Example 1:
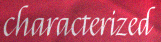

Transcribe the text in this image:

characterized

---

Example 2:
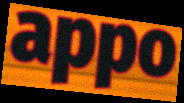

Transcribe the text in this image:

appo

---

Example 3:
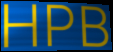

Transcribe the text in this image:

HPB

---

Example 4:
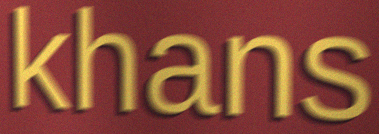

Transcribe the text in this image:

khans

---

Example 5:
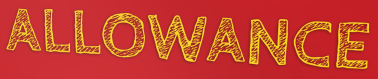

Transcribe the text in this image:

ALLOWANCE